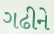
ગઢીને